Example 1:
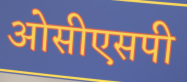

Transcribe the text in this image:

ओसीएसपी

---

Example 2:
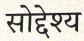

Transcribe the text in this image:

सोद्देश्य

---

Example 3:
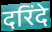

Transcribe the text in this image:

दरिंदे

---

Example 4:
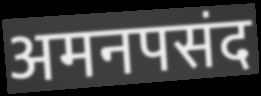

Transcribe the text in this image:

अमनपसंद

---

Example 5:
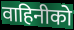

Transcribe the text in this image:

वाहिनीको